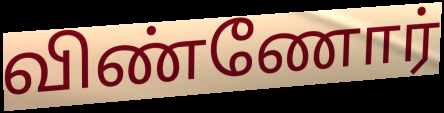
விண்ணோர்